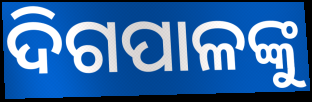
ଦିଗପାଳଙ୍କୁ